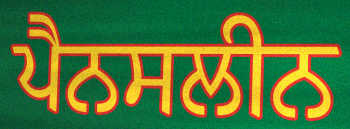
ਪੈਨਸਲੀਨ